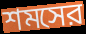
শমসের